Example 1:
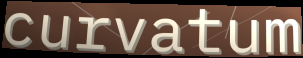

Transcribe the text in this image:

curvatum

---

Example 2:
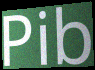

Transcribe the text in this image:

Pib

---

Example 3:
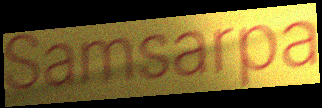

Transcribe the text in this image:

Samsarpa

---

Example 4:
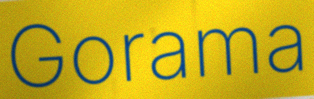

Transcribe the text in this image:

Gorama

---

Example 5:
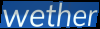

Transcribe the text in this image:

wether